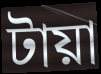
টায়া